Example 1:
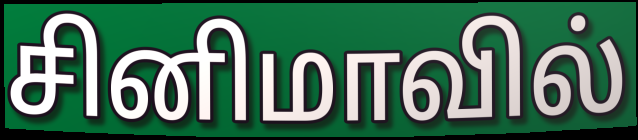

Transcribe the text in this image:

சினிமாவில்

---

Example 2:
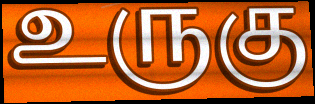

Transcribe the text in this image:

உருகு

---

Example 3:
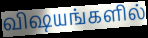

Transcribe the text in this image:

விஷயங்களில்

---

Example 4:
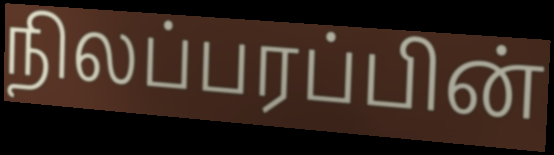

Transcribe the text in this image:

நிலப்பரப்பின்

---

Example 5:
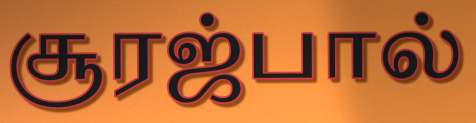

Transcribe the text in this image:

சூரஜ்பால்